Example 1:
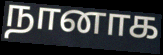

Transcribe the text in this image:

நானாக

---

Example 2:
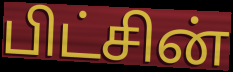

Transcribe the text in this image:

பிட்சின்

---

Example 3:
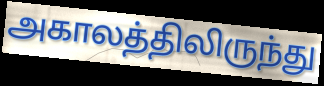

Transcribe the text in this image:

அகாலத்திலிருந்து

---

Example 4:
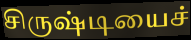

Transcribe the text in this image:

சிருஷ்டியைச்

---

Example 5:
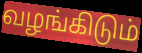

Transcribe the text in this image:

வழங்கிடும்